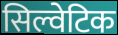
सिल्वेटिक